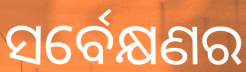
ସର୍ବେକ୍ଷଣର